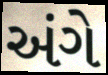
અંગે